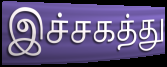
இச்சகத்து